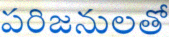
పరిజనులతో